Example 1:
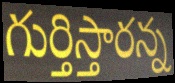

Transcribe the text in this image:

గుర్తిస్తారన్న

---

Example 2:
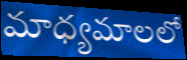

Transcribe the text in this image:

మాధ్యమాలలో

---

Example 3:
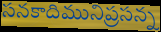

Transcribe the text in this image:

సనకాదిమునిప్రసన్న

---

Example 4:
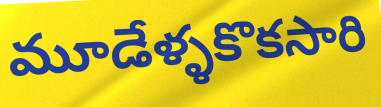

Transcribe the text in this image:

మూడేళ్ళకొకసారి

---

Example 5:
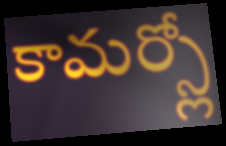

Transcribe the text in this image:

కామర్స్లో